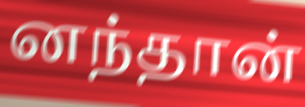
னந்தான்